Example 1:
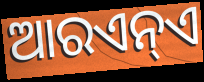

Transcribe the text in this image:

ଆରଏନ୍ଏ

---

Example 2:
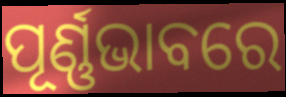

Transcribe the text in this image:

ପୂର୍ଣ୍ଣଭାବରେ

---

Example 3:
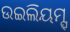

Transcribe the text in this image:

ଉଇଲିୟମ୍ସ୍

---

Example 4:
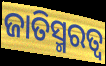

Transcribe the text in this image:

ଜାତିସ୍ମରତ୍ୱ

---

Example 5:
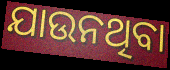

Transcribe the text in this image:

ଯାଉନଥିବା